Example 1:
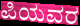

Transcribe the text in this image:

ಪಿಯವರ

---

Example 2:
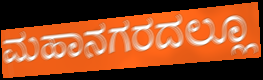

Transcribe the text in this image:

ಮಹಾನಗರದಲ್ಲೂ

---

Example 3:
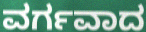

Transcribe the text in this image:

ವರ್ಗವಾದ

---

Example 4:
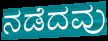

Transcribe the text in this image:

ನಡೆದವು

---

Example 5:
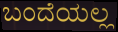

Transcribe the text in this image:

ಬಂದೆಯಲ್ಲ